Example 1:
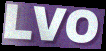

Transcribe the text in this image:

LVO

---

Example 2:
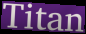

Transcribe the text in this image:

Titan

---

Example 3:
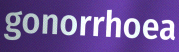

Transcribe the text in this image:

gonorrhoea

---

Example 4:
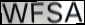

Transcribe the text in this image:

WFSA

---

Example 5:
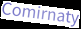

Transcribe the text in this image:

Comirnaty